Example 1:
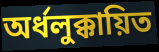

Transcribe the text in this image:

অর্ধলুক্কায়িত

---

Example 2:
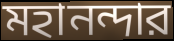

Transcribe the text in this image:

মহানন্দার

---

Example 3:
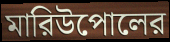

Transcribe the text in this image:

মারিউপোলের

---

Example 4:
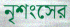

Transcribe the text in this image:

নৃশংসের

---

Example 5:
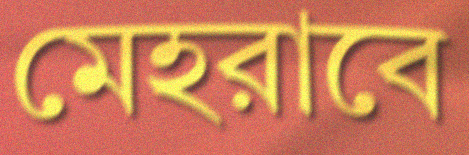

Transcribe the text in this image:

মেহরাবে